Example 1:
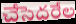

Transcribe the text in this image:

చేసెదరేల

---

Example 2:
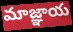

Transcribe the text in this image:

మాజ్ఞాయ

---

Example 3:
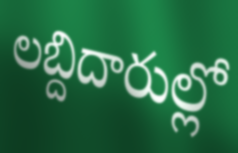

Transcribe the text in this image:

లబ్దిదారుల్లో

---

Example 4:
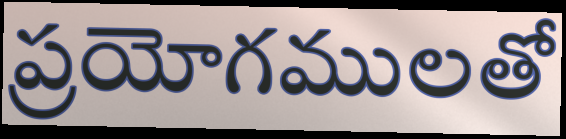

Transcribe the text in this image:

ప్రయోగములతో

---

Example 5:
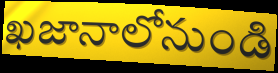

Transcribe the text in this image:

ఖజానాలోనుండి